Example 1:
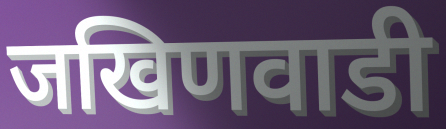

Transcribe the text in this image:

जखिणवाडी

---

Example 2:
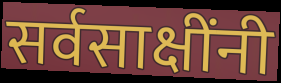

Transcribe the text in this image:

सर्वसाक्षींनी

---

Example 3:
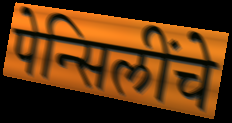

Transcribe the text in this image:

पेन्सिलींचे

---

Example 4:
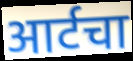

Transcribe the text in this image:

आर्टचा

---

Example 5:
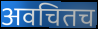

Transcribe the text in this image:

अवचितच